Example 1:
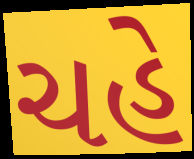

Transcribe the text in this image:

ચહે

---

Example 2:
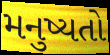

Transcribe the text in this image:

મનુષ્યતો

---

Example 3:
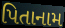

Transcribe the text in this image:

પિતાનામ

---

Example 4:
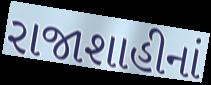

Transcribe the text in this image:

રાજાશાહીનાં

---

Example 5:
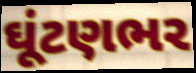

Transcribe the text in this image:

ઘૂંટણભર